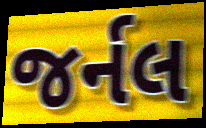
જર્નલ